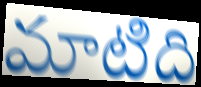
మాటిది